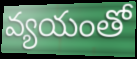
వ్యయంతో